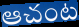
ఆచంట